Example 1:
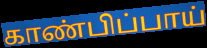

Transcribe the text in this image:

காண்பிப்பாய்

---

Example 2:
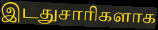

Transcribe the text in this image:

இடதுசாரிகளாக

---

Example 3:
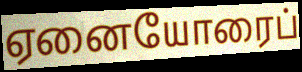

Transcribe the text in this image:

ஏனையோரைப்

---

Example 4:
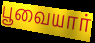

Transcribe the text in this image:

பூவையார்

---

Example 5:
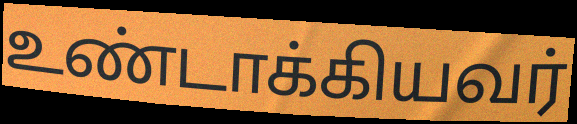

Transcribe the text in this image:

உண்டாக்கியவர்